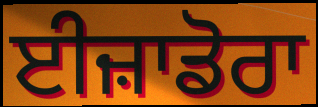
ਈਜ਼ਾਡੋਰਾ